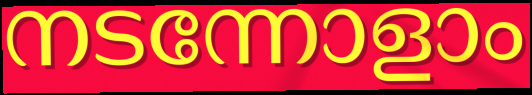
നടന്നോളാം